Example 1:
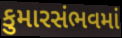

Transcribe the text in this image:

કુમારસંભવમાં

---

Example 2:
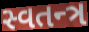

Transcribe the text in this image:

સ્વતન્ત્ર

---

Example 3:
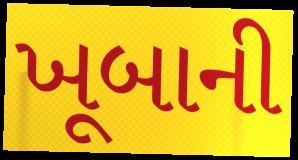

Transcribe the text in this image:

ખૂબાની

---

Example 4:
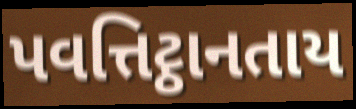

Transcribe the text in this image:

પવત્તિટ્ઠાનતાય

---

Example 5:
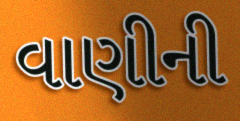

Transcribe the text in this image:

વાણીની